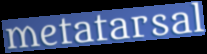
metatarsal